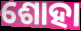
ଶୋହା